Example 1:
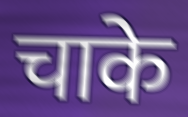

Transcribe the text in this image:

चाके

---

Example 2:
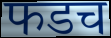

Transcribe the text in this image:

फडच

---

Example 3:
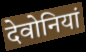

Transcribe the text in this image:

देवोनियां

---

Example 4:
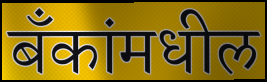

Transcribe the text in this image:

बँकांमधील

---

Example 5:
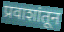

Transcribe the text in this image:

प्रवाशांतून